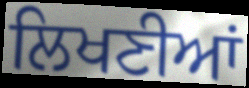
ਲਿਖਣੀਆਂ